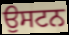
ਉਸਟਨ